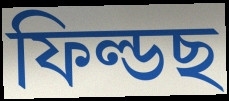
ফিল্ডছ